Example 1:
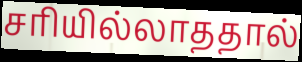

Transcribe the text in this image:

சரியில்லாததால்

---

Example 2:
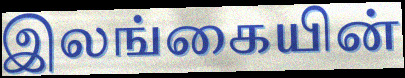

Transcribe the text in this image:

இலங்கையின்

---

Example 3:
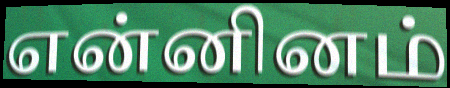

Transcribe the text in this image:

என்னினம்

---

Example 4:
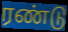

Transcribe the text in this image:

ரண்டு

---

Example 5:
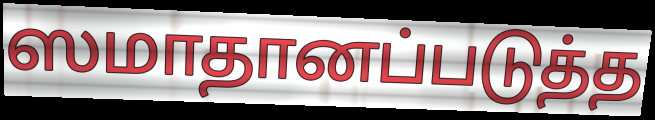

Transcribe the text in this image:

ஸமாதானப்படுத்த